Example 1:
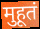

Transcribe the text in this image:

मुहूतं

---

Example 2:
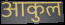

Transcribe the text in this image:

आकुल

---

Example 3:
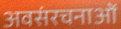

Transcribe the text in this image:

अवसंरचनाओं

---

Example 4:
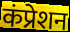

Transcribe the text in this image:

कंप्रेशन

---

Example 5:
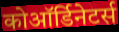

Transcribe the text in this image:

कोऑर्डिनेटर्स